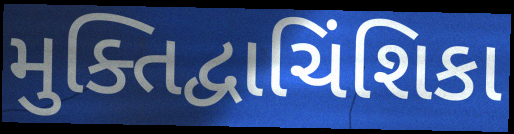
મુક્તિદ્વાચિંશિકા